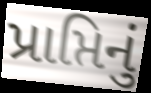
પ્રાપ્તિનું